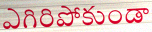
ఎగిరిపోకుండా